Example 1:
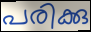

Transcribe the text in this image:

പരിക്കു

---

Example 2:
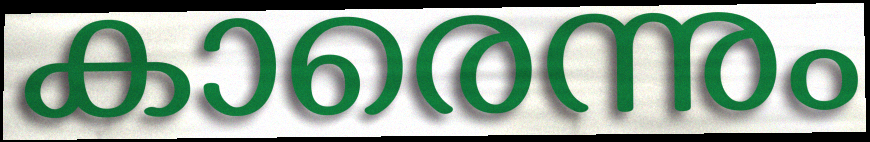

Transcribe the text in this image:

കാരെന്നും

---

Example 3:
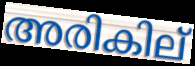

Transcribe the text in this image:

അരികില്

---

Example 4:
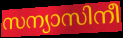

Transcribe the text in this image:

സന്യാസിനീ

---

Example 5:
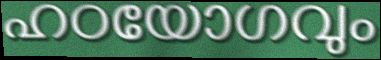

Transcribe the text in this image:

ഹഠയോഗവും